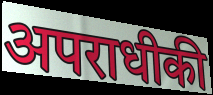
अपराधीकी